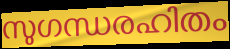
സുഗന്ധരഹിതം